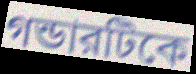
গন্ডারটিকে